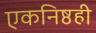
एकनिष्ठही